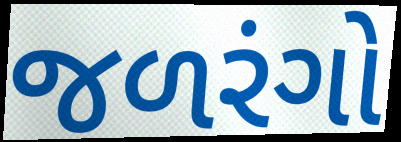
જળરંગો